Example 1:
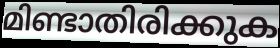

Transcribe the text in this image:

മിണ്ടാതിരിക്കുക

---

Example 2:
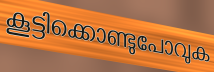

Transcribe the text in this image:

കൂട്ടിക്കൊണ്ടുപോവുക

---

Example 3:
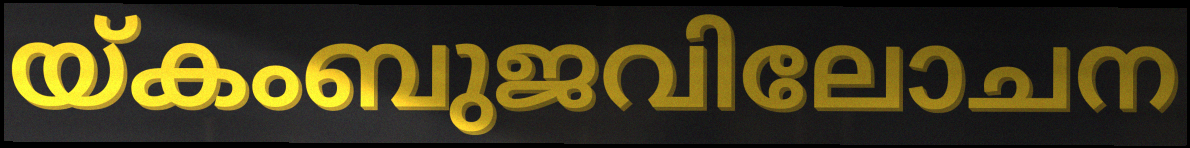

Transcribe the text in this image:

യ്കംബുജവിലോചന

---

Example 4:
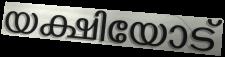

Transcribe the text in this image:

യക്ഷിയോട്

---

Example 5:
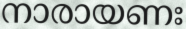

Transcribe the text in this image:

നാരായണഃ